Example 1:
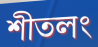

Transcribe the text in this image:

শীতলং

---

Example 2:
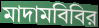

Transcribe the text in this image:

মাদামবিবির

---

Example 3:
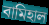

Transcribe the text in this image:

বামিহাল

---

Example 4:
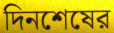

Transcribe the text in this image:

দিনশেষের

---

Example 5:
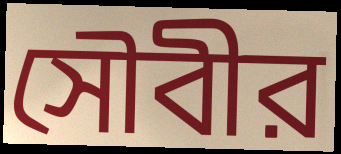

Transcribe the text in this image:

সৌবীর